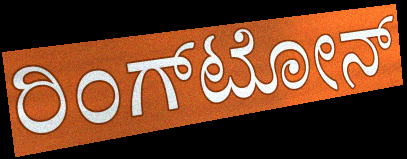
ರಿಂಗ್‌ಟೋನ್